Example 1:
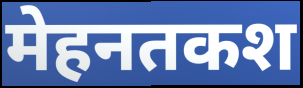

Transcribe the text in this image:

मेहनतकश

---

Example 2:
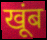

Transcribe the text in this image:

खूंब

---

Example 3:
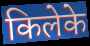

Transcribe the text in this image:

किलेके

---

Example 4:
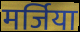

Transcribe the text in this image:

मर्जिया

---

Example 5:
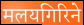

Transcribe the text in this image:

मलयगिरिने